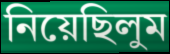
নিয়েছিলুম